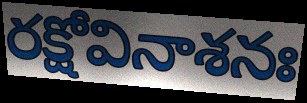
రక్షోవినాశనః